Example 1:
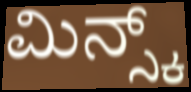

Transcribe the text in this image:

ಮಿನ್ಸ್ಕ್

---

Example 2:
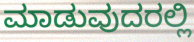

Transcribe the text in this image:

ಮಾಡುವುದರಲ್ಲಿ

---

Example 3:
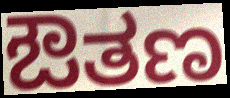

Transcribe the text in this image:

ಔತಣ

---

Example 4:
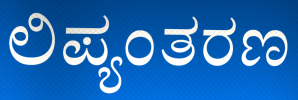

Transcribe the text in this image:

ಲಿಪ್ಯಂತರಣ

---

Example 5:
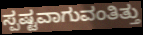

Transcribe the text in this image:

ಸ್ಪಷ್ಟವಾಗುವಂತಿತ್ತು